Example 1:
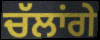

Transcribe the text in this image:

ਚੱਲਾਂਗੇ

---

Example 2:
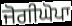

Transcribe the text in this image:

ਜੋਗੀਘੋਪਾ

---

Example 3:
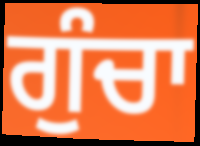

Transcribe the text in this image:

ਗੁੰਚਾ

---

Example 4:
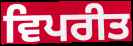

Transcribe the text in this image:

ਵਿਪਰੀਤ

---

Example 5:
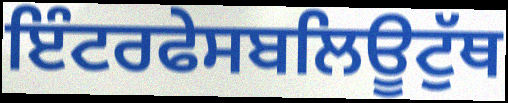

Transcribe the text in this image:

ਇੰਟਰਫੇਸਬਲਿਊਟੁੱਥ